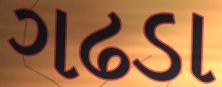
ગઢડા